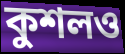
কুশলও